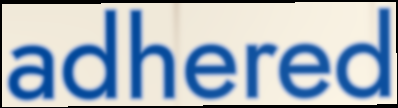
adhered